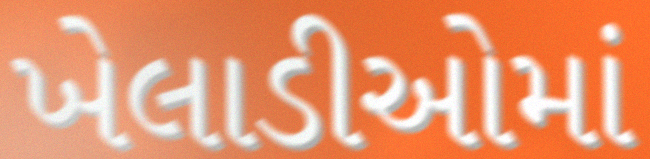
ખેલાડીઓમાં